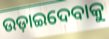
ଉଡ଼ାଇଦେବାକୁ